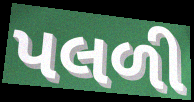
પલળી